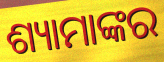
ଶ୍ୟାମାଙ୍କର